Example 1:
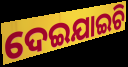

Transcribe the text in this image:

ଦେଇଯାଇଚି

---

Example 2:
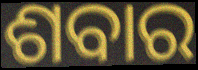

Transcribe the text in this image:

ଶବାର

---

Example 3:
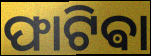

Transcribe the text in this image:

ଫାଟିଵା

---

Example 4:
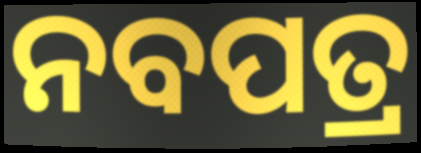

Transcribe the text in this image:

ନବପତ୍ର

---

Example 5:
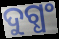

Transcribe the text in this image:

ଦୁଗ୍ଧଂ